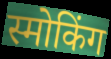
स्मोकिंग